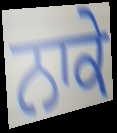
ਨਾਕੇ